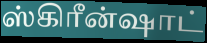
ஸ்கிரீன்ஷாட்